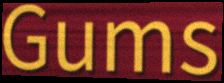
Gums